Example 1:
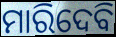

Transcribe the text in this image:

ମାରିଦେବି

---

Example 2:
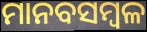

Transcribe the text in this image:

ମାନବସମ୍ବଳ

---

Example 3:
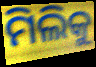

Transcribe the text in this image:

ମିଲିକୁ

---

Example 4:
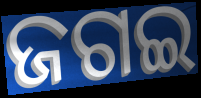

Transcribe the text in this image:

ଜଗଇ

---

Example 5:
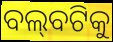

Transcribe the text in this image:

ବଲ୍‌ବଟିକୁ